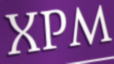
XPM